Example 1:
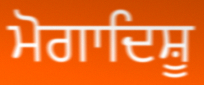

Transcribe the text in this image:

ਮੋਗਾਦਿਸ਼ੂ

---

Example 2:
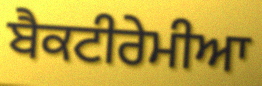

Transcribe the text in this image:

ਬੈਕਟੀਰੇਮੀਆ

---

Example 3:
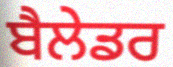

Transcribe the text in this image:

ਬੈਲੇਡਰ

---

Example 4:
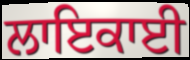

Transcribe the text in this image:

ਲਾਇਕਾਈ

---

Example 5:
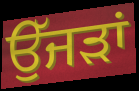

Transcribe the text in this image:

ਉੱਜੜਾਂ